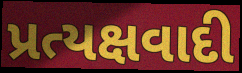
પ્રત્યક્ષવાદી